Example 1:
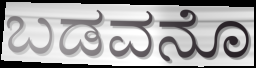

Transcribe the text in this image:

ಬಡವನೊ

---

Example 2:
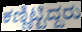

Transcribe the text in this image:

ಕಣ್ಣಿಟ್ಟಿದ್ದರು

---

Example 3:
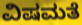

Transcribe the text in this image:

ವಿಷಮತೆ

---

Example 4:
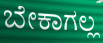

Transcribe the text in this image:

ಬೇಕಾಗಲ್ಲ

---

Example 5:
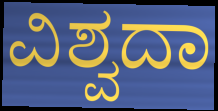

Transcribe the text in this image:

ವಿಶ್ವದಾ